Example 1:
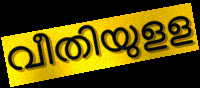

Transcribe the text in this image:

വീതിയുളള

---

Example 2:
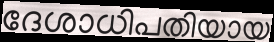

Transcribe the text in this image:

ദേശാധിപതിയായ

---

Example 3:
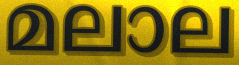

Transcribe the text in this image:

മലാല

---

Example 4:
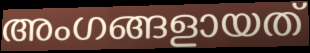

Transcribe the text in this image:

അംഗങ്ങളായത്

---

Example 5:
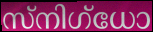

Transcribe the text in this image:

സ്നിഗ്ധോ